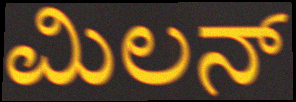
ಮಿಲನ್